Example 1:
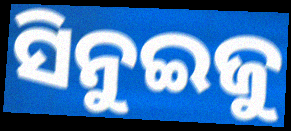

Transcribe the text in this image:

ସିନୁଇଜୁ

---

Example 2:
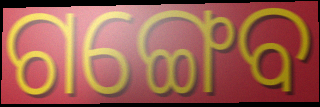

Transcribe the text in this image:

ଗଙ୍ଗେବ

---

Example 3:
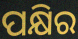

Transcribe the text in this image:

ପକ୍ଷିର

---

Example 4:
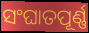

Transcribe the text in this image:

ସଂଘାତପୂର୍ଣ୍ଣ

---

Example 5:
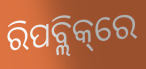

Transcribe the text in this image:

ରିପବ୍ଲିକ୍‌ରେ